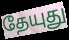
தேயுது